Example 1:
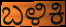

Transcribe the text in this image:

ಬಳಿಕಿ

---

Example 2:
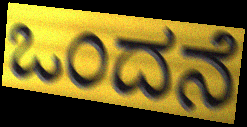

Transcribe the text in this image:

ಒಂದನೆ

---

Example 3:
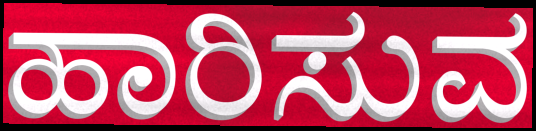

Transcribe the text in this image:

ಹಾರಿಸುವ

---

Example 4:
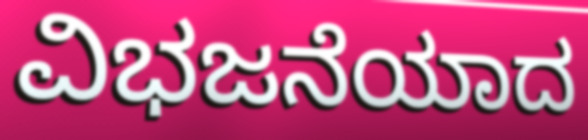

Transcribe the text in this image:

ವಿಭಜನೆಯಾದ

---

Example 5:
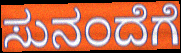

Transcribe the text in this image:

ಸುನಂದೆಗೆ